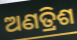
ଅଣତ୍ରିଶ